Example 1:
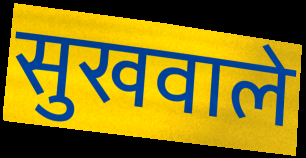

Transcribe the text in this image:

सुखवाले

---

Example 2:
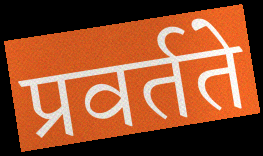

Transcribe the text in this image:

प्रवर्तते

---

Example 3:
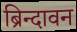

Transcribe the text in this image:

ब्रिन्दावन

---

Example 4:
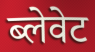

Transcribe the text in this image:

ब्लेवेट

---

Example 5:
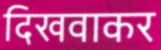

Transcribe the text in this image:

दिखवाकर